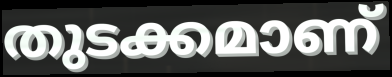
തുടക്കമാണ്